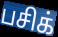
பசிக்